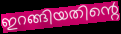
ഇറങ്ങിയതിന്റെ